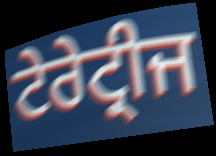
ਟੇਰੇਟ੍ਰੀਜ